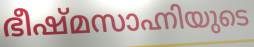
ഭീഷ്മസാഹ്നിയുടെ